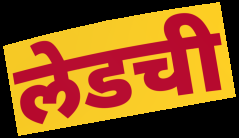
लेडची